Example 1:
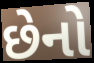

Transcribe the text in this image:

છેનો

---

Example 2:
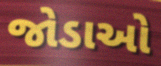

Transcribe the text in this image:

જોડાઓ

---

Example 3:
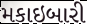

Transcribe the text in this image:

મકાઇબારી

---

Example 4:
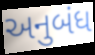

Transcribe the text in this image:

અનુબંધ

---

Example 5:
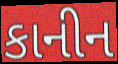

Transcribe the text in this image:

કાનીન